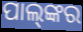
ପାଲ୍‍ଙ୍କର